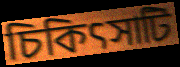
চিকিৎসাটি